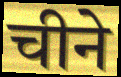
चीने